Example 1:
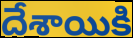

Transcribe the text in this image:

దేశాయికి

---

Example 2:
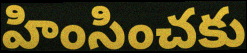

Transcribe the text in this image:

హింసించకు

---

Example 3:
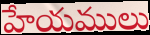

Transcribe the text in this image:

హేయములు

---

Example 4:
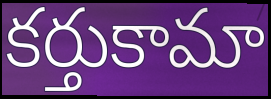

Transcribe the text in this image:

కర్తుకామా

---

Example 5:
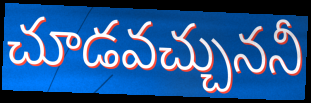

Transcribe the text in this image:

చూడవచ్చుననీ